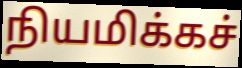
நியமிக்கச்